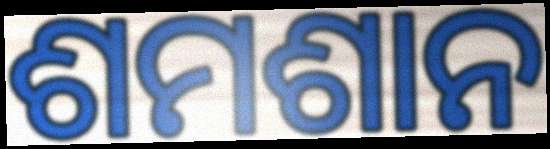
ଶମଶାନ